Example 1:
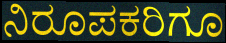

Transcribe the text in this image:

ನಿರೂಪಕರಿಗೂ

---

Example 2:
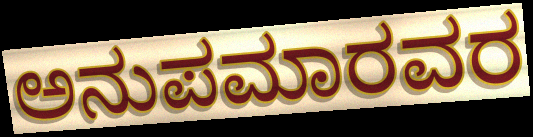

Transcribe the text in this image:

ಅನುಪಮಾರವರ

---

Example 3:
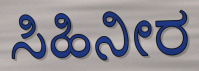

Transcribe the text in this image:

ಸಿಹಿನೀರ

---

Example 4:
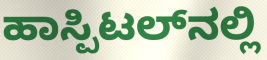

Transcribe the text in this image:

ಹಾಸ್ಪಿಟಲ್‌ನಲ್ಲಿ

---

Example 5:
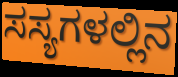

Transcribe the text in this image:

ಸಸ್ಯಗಳಲ್ಲಿನ